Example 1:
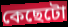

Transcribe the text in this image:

কেছেটো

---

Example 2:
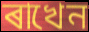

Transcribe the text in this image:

ৰাখেন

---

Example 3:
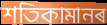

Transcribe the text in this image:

শতিকামানৰ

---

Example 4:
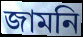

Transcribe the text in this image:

জামনি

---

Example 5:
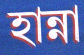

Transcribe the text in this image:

হান্না